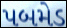
પબમેડ